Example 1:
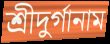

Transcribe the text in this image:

শ্রীদুর্গানাম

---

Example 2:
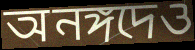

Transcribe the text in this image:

অনঙ্গদেও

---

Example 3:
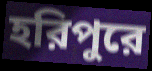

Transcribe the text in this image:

হরিপুরে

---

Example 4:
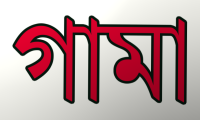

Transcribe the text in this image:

গামা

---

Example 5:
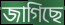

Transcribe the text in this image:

জাগিছে